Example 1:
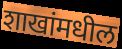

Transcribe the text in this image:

शाखांमधील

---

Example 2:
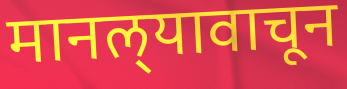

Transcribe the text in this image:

मानल्यावाचून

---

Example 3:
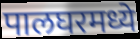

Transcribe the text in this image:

पालघरमध्ये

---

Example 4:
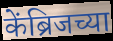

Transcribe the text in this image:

केंब्रिजच्या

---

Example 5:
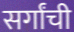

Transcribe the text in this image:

सर्गांची